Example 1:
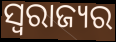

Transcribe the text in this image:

ସ୍ୱରାଜ୍ୟର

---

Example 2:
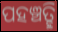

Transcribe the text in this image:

ପହଞ୍ଚତ୍ଛି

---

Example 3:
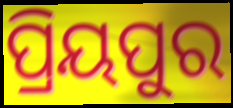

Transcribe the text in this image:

ପ୍ରିୟପୁର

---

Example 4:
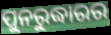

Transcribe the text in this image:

ପୁନରୁଦ୍ଧାରର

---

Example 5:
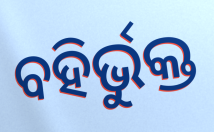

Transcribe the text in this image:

ବହିର୍ଭୁକ୍ତ